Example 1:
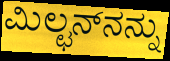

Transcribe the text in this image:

ಮಿಲ್ಟನ್‌ನನ್ನು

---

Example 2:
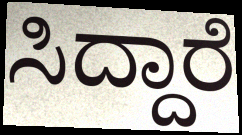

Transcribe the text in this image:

ಸಿದ್ದಾರೆ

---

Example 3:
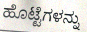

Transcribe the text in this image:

ಹೊಟ್ಟೆಗಳನ್ನು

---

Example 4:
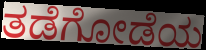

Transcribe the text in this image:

ತಡೆಗೋಡೆಯ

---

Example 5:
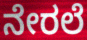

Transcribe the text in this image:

ನೇರಲೆ